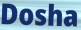
Dosha